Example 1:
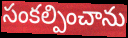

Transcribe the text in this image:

సంకల్పించాను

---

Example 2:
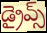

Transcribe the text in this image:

డ్రైవ్స్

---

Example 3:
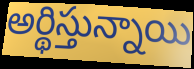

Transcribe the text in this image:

అర్థిస్తున్నాయి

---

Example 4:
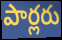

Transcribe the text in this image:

పార్లరు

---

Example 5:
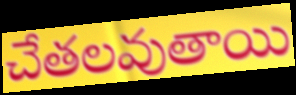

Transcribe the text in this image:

చేతలవుతాయి